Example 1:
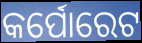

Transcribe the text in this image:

କର୍ପୋରେଟ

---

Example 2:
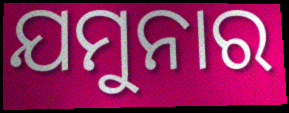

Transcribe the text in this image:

ଯମୁନାର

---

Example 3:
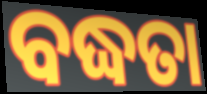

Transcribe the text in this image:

ବଦ୍ଧତା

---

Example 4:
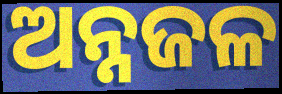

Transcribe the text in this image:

ଅନ୍ନଜଳ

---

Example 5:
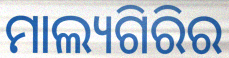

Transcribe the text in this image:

ମାଲ୍ୟଗିରିର